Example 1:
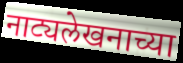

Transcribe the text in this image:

नाट्यलेखनाच्या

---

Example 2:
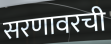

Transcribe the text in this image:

सरणावरची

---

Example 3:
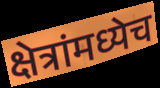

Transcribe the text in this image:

क्षेत्रांमध्येच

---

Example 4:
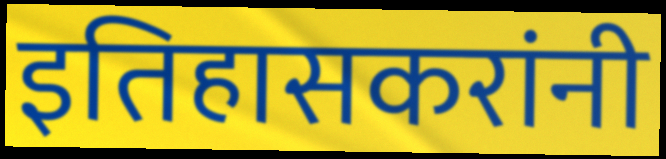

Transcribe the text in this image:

इतिहासकरांनी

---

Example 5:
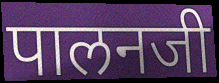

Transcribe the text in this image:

पालनजी